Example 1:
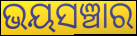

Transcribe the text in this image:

ଭୟସଞ୍ଚାର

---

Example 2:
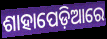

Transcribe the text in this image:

ଶାହାପେଡ଼ିଆରେ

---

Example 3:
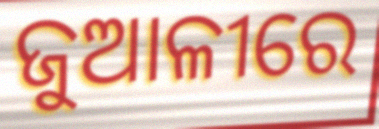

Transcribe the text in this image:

ଜୁଆଳୀରେ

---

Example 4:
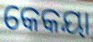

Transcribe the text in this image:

କେକୟା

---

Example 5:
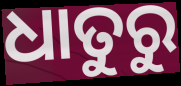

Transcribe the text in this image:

ଧାତୁରୁ